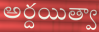
అర్దయిత్వా